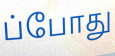
ப்போது